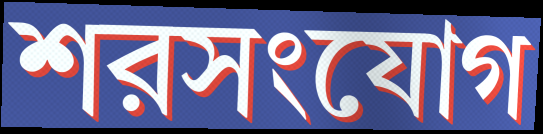
শরসংযোগ